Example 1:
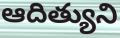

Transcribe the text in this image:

ఆదిత్యుని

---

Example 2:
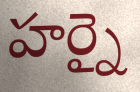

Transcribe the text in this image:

హర్నై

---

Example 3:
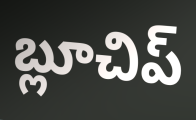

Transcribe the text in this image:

బ్లూచిప్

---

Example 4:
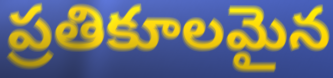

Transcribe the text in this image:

ప్రతికూలమైన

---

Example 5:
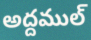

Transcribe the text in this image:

అద్దముల్